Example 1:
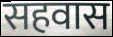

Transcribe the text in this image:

सहवास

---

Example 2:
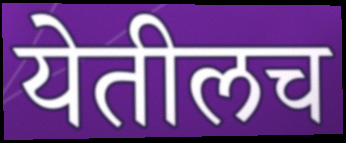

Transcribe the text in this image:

येतीलच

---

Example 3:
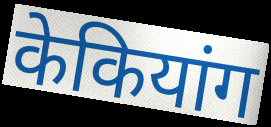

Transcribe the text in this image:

केकियांग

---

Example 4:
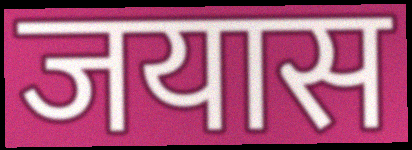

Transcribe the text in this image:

जयास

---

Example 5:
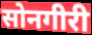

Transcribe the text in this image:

सोनगीरी